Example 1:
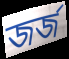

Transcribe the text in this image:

জৰ্জ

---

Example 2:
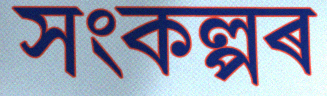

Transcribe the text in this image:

সংকল্পৰ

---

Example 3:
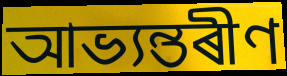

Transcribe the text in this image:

আভ্যন্তৰীণ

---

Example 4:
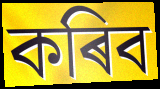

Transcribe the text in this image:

কৰিব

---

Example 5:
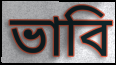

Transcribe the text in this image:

ভাবি